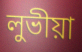
লুভীয়া